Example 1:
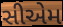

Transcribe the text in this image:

સીએમ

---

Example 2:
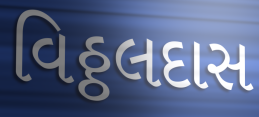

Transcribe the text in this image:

વિઠ્ઠલદાસ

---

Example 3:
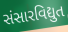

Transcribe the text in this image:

સંસારવિદ્યુત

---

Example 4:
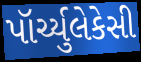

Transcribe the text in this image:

પૉર્ચ્યુલેકેસી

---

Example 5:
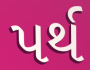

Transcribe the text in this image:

પર્થ